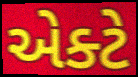
એક્ટે